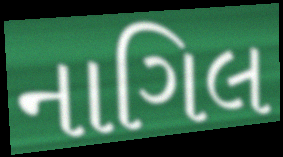
નાગિલ